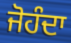
ਜੋਹੰਦਾ